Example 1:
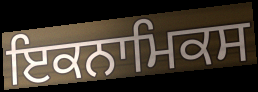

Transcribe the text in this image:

ਇਕਨਾਮਿਕਸ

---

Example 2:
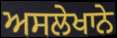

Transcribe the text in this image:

ਅਸਲੇਖਾਨੇ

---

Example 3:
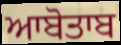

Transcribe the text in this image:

ਆਬੋਤਾਬ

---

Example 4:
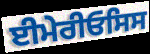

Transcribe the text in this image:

ਈਮੇਰੀਓਸਿਸ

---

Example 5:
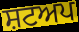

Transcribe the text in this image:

ਸ਼ਟਅਪ